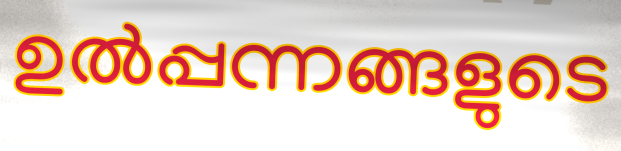
ഉൽപ്പന്നങ്ങളുടെ